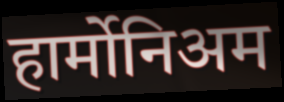
हार्मोनिअम